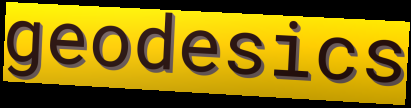
geodesics